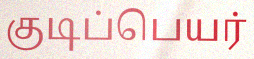
குடிப்பெயர்